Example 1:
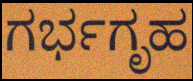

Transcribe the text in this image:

ಗರ್ಭಗೃಹ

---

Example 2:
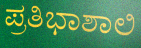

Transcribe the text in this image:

ಪ್ರತಿಭಾಶಾಲಿ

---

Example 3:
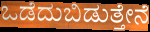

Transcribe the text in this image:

ಒಡೆದುಬಿಡುತ್ತೇನೆ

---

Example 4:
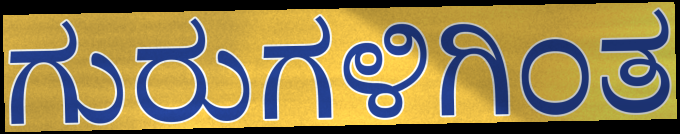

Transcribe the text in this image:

ಗುರುಗಳಿಗಿಂತ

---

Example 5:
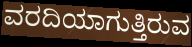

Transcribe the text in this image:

ವರದಿಯಾಗುತ್ತಿರುವ